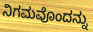
ನಿಗಮವೊಂದನ್ನು